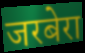
जरबेरा